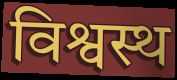
विश्वस्थ